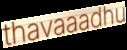
thavaaadhu